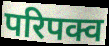
परिपक्व